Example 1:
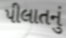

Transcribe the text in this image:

પીલાતનું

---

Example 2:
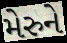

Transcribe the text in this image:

મેરુને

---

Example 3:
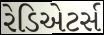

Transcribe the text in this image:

રેડિએટર્સ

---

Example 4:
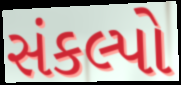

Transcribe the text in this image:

સંકલ્પો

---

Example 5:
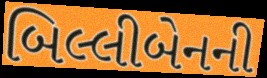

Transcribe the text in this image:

બિલ્લીબેનની